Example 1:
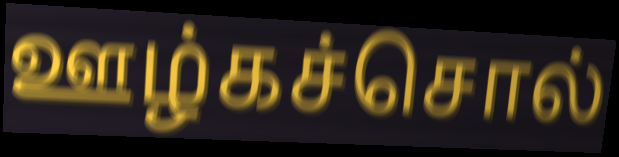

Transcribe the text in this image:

ஊழ்கச்சொல்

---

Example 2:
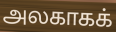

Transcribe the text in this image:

அலகாகக்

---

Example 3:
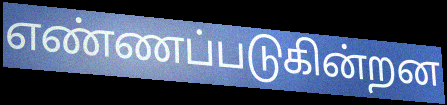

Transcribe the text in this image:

எண்ணப்படுகின்றன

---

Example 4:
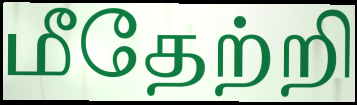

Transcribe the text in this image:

மீதேற்றி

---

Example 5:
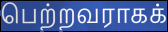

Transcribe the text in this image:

பெற்றவராகக்